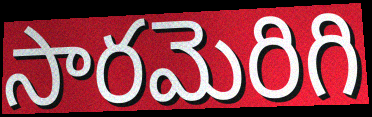
సారమెరిగి